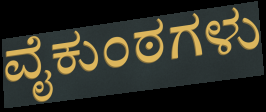
ವೈಕುಂಠಗಳು